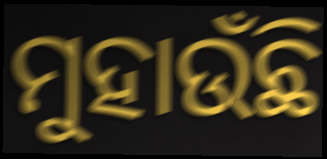
ମୁହାଉଁଛି